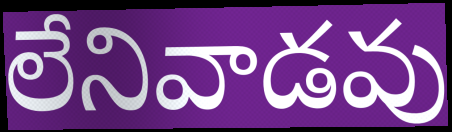
లేనివాడవు